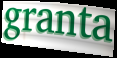
granta